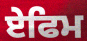
ਏਫਿਮ